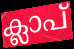
ക്ലാപ്